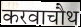
करवाचौथ